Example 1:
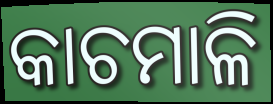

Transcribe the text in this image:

କାଚମାଳି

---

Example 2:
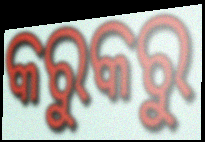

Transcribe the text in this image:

କରୁକରୁ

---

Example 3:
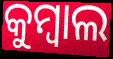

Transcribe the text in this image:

କୁମ୍ବାଲ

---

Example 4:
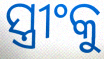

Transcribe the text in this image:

ସ୍ତ୍ରୀଂକୁ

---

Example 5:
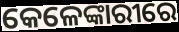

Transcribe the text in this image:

କେଳେଙ୍କାରୀରେ